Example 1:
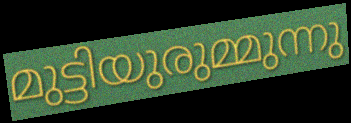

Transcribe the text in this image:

മുട്ടിയുരുമ്മുന്നു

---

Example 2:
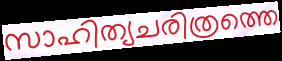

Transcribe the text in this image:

സാഹിത്യചരിത്രത്തെ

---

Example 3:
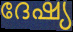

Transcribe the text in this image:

ദേഷ്യ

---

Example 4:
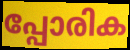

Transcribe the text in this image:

പ്പോരിക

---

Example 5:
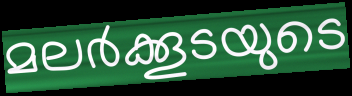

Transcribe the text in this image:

മലർക്കൂടയുടെ